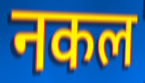
नकल